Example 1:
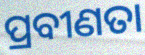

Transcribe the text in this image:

ପ୍ରବୀଣତା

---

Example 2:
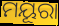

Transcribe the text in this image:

ମୟୂରା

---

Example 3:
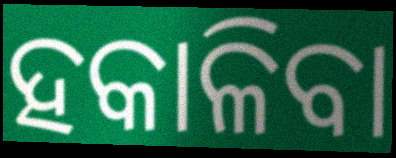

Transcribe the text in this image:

ହକାଳିବା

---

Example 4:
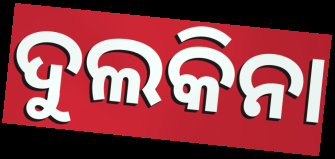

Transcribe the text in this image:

ଦୁଲକିନା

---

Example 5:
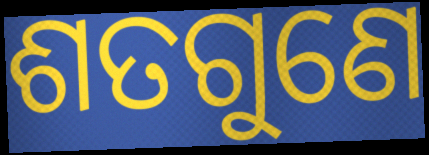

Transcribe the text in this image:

ଶତଗୁଣେ